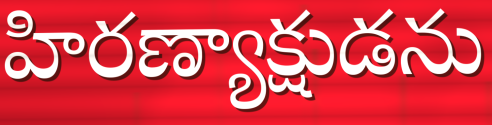
హిరణ్యాక్షుడను